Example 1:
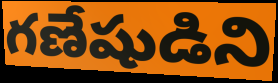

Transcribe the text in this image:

గణేషుడిని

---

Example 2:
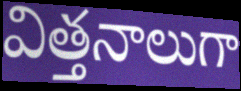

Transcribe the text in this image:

విత్తనాలుగా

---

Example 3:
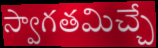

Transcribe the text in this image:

స్వాగతమిచ్చే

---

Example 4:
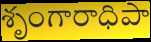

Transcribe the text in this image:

శృంగారాధిపా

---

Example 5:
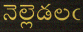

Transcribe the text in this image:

నెల్లెడలఁ